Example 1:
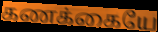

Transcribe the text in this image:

கணக்கையே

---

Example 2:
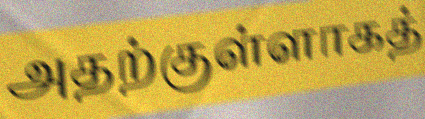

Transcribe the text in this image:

அதற்குள்ளாகத்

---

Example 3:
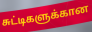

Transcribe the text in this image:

சுட்டிகளுக்கான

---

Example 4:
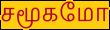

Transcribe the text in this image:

சமூகமோ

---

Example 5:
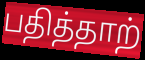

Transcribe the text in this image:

பதித்தாற்